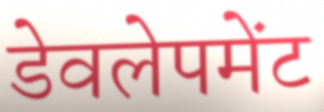
डेवलेपमेंट